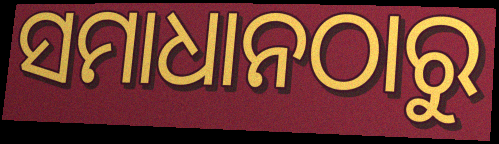
ସମାଧାନଠାରୁ